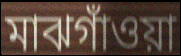
মাঝগাঁওয়া